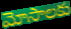
మోసాలకు